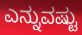
ಎನ್ನುವಷ್ಟು